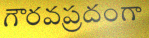
గౌరవప్రదంగా